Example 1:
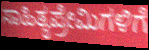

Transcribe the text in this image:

ಸಾಹಿತ್ಯಪ್ರೇಮಿಗಳಿಗೆ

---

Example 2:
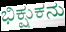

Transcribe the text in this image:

ಭಿಕ್ಷುಕನು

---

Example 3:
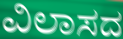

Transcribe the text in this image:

ವಿಲಾಸದ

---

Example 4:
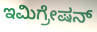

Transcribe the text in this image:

ಇಮಿಗ್ರೇಷನ್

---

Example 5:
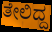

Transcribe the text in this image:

ತೇಲಿದ್ದ